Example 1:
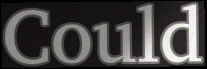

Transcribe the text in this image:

Could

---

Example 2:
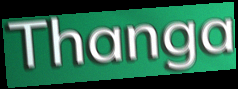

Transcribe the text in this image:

Thanga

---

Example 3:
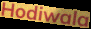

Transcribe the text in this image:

Hodiwala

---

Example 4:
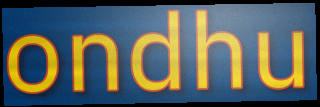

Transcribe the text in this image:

ondhu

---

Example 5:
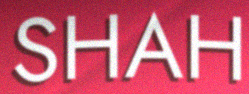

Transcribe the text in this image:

SHAH